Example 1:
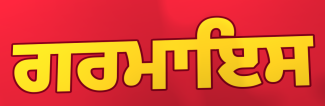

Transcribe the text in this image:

ਗਰਮਾਇਸ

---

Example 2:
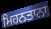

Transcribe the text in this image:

ਮਿਹਨਤਾਨਾ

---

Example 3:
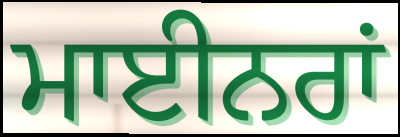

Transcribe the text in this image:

ਮਾਈਨਰਾਂ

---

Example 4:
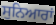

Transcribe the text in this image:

ਸੁਨਿਆਰਾਂ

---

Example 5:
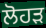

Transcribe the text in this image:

ਲੋਹੜ